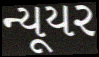
ન્યૂયર